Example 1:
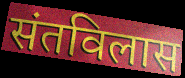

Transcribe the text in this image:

संतविलास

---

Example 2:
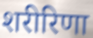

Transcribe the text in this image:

शरीरिणा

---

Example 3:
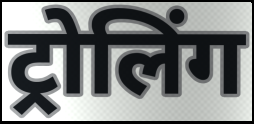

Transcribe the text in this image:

ट्रोलिंग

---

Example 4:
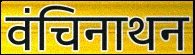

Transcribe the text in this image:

वंचिनाथन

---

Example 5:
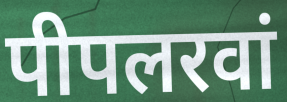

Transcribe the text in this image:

पीपलरवां